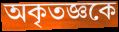
অকৃতজ্ঞকে